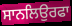
ਸਾਨਲਿਉਰਫਾ